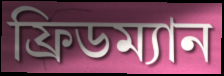
ফ্রিডম্যান